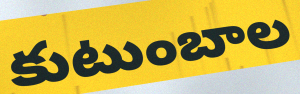
కుటుంబాల